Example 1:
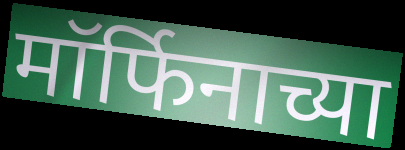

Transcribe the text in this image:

मॉर्फिनाच्या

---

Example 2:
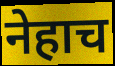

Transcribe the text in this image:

नेहाच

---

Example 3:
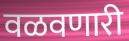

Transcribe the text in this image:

वळवणारी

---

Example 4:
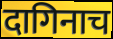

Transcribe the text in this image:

दागिनाच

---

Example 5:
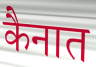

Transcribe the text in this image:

कैनात